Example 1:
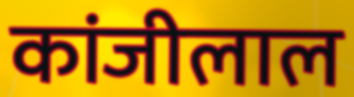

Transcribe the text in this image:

कांजीलाल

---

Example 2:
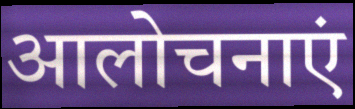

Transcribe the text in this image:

आलोचनाएं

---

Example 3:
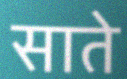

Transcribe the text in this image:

साते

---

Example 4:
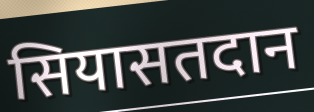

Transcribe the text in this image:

सियासतदान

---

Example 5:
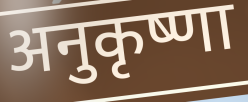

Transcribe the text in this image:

अनुकृष्णा